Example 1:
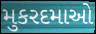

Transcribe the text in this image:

મુકરદમાઓ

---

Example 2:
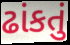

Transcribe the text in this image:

ઢાંકતું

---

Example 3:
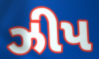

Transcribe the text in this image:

ઝીપ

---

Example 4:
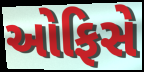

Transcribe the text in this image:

ઓફિસે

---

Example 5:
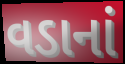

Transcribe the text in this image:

વડાનાં